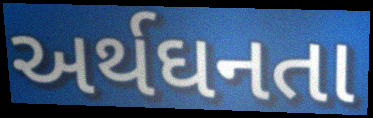
અર્થઘનતા